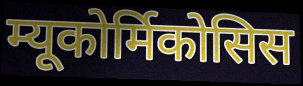
म्यूकोर्मिकोसिस